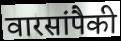
वारसांपैकी